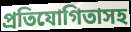
প্রতিযোগিতাসহ